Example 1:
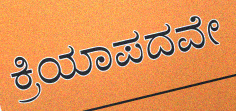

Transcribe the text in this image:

ಕ್ರಿಯಾಪದವೇ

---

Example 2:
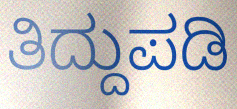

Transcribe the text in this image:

ತಿದ್ದುಪಡಿ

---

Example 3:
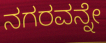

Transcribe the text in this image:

ನಗರವನ್ನೇ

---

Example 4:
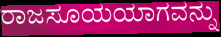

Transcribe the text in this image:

ರಾಜಸೂಯಯಾಗವನ್ನು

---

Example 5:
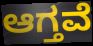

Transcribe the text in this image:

ಆಗ್ತವೆ